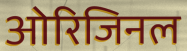
ओरिजिनल